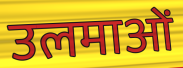
उलमाओं